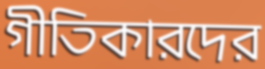
গীতিকারদের